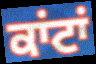
ਕਾਂਟਾਂ